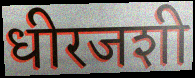
धीरजशी